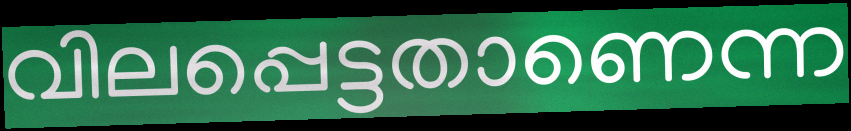
വിലപ്പെട്ടതാണെന്ന